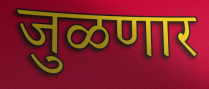
जुळणार